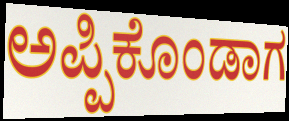
ಅಪ್ಪಿಕೊಂಡಾಗ